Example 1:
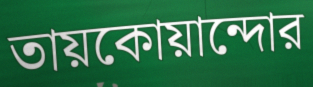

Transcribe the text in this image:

তায়কোয়ান্দোর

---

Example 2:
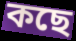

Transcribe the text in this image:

কছে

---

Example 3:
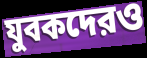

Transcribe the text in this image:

যুবকদেরও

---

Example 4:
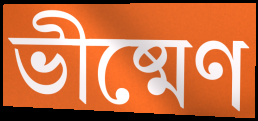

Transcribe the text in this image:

ভীষ্মেণ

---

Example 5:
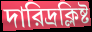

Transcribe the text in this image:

দারিদ্রক্লিষ্ট